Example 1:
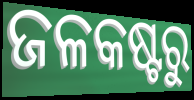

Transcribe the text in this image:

ଜଳକଷ୍ଟରୁ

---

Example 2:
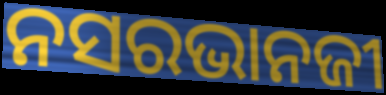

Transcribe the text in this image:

ନସରଭାନଜୀ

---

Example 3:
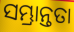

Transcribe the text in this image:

ସମ୍ଭ୍ରାନ୍ତତା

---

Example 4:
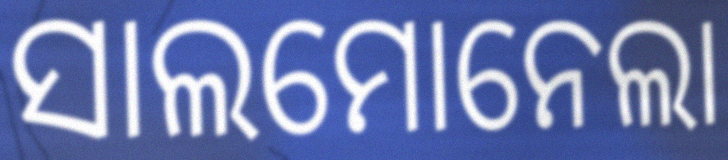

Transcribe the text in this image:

ସାଲମୋନେଲା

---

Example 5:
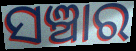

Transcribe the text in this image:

ସଞ୍ଚାର